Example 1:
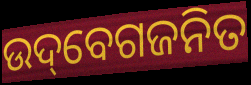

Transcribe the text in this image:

ଉଦ୍‌ବେଗଜନିତ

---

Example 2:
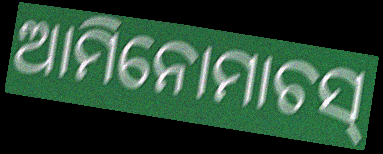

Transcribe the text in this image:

ଆମିନୋମାଚସ୍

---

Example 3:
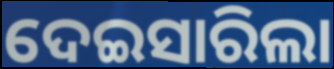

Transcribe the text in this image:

ଦେଇସାରିଲା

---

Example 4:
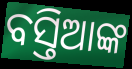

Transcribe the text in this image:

ବସ୍ତିଆଙ୍କ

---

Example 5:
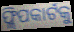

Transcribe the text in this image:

ଫ୍ଲିପକାର୍ଟକୁ